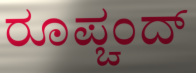
ರೂಪ್ಚಂದ್